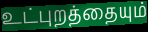
உட்புறத்தையும்